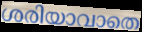
ശരിയാവാതെ